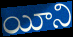
యీని